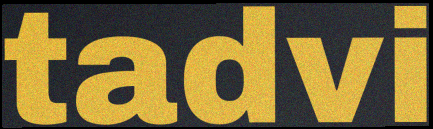
tadvi